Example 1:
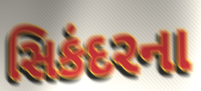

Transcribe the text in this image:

સિકંદરના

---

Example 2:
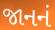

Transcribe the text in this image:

જાનનં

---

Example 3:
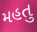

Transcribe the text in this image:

મહતુ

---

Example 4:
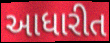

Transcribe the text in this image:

આધારીત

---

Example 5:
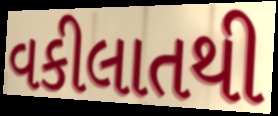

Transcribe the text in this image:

વકીલાતથી